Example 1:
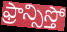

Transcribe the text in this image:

ఫ్రాన్సిస్తో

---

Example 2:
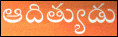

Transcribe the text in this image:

ఆదిత్యుడు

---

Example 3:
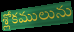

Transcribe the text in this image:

శ్లోకములును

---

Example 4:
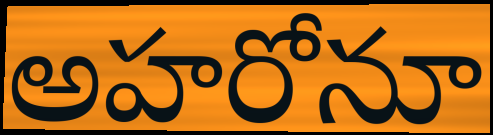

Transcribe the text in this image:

అహరోనూ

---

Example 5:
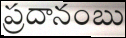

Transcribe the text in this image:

ప్రదానంబు